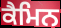
ਕੈਮਿਨ